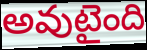
అవుటైంది